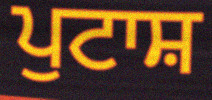
ਪੁਟਾਸ਼